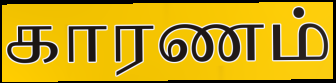
காரணம்